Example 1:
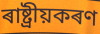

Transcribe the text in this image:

ৰাষ্ট্ৰীয়কৰণ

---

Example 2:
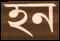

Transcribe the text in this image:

হন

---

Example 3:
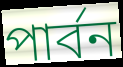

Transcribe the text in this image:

পাৰ্বন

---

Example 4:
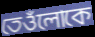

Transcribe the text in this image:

তেওঁলোকে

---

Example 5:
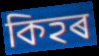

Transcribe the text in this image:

কিহৰ